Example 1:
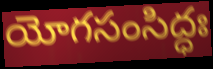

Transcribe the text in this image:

యోగసంసిద్ధః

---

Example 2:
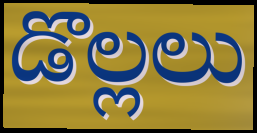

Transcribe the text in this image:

డొల్లలు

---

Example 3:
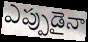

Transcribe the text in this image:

ఎప్పుడైనా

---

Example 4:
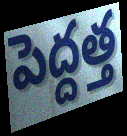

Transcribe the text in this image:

పెద్దత్త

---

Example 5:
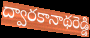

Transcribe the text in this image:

ద్వారకానాథరెడ్డి